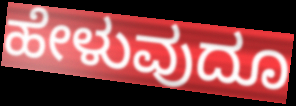
ಹೇಳುವುದೂ